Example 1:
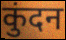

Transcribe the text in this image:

कुंदन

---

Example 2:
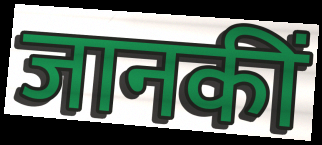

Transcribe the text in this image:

जानकीं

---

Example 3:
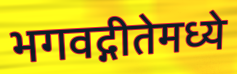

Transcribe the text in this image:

भगवद्गीतेमध्ये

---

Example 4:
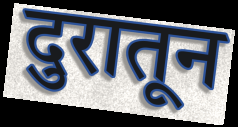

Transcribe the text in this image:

दुरातून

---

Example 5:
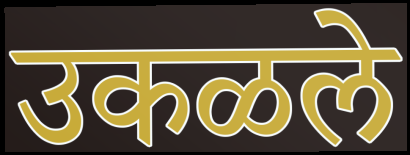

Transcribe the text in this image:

उकळले